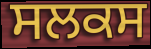
ਸਲਕਸ